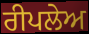
ਰੀਪਲੇਅ